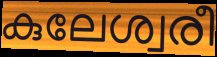
കുലേശ്വരീ